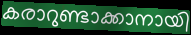
കരാറുണ്ടാക്കാനായി